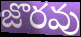
జొరవు